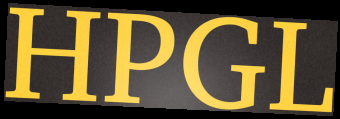
HPGL